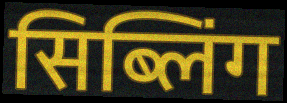
सिब्लिंग